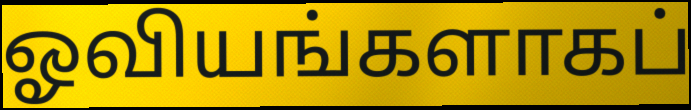
ஓவியங்களாகப்